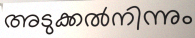
അടുക്കൽനിന്നും